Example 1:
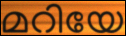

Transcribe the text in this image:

മറിയേ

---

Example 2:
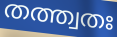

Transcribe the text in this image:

തത്ത്വതഃ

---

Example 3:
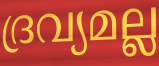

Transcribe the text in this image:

ദ്രവ്യമല്ല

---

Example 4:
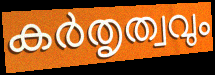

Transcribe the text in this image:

കർതൃത്വവും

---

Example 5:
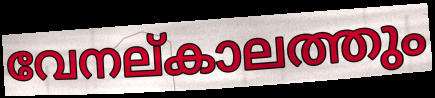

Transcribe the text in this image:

വേനല്കാലത്തും